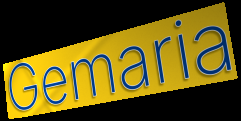
Gemaria